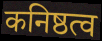
कनिष्ठत्व